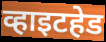
व्हाइटहेड